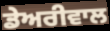
ਡੇਅਰੀਵਾਲ